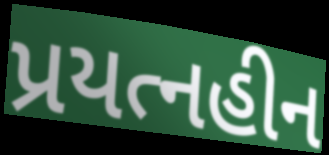
પ્રયત્નહીન